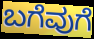
ಬಗೆವುಗೆ